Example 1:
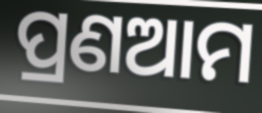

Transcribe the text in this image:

ପ୍ରଣଆମ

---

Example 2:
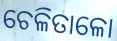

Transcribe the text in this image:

ଚେଳିତାଳୋ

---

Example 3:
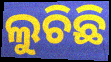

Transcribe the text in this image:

ଲୁଚିଛି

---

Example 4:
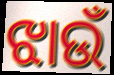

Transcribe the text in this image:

ଝାଉଁ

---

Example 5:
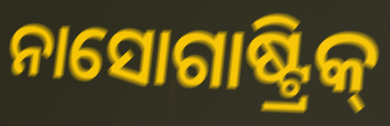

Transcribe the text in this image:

ନାସୋଗାଷ୍ଟ୍ରିକ୍